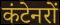
कंटेनरों